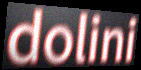
dolini